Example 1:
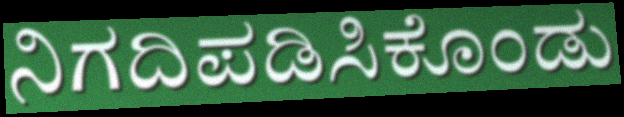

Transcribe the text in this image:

ನಿಗದಿಪಡಿಸಿಕೊಂಡು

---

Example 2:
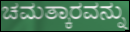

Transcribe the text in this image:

ಚಮತ್ಕಾರವನ್ನು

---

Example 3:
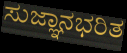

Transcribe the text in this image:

ಸುಜ್ಞಾನಭರಿತ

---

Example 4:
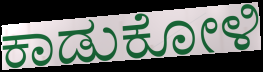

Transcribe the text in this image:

ಕಾಡುಕೋಳಿ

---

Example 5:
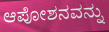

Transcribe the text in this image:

ಆಪೋಶನವನ್ನು